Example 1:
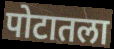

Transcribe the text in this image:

पोटातला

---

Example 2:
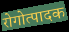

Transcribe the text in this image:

रोगोत्पादक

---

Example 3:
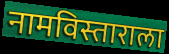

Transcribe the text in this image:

नामविस्ताराला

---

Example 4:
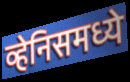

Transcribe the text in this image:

व्हेनिसमध्ये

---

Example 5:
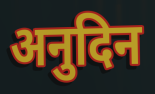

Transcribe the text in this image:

अनुदिन